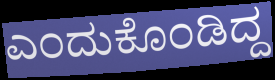
ಎಂದುಕೊಂಡಿದ್ದ